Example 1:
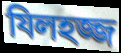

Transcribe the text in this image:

যিলহজ্জ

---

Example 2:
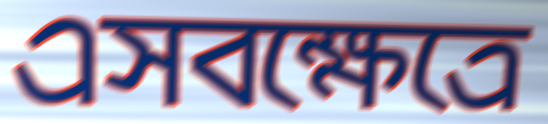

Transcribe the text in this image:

এসবক্ষেত্রে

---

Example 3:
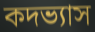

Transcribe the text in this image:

কদভ্যাস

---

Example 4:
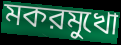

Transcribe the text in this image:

মকরমুখো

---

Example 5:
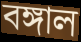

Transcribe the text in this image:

বঙ্গাল